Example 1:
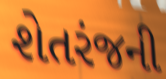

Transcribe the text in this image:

શેતરંજની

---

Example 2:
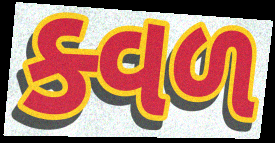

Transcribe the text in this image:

ક્વળ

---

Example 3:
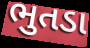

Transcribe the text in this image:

ભુતડા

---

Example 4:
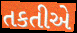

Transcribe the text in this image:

તકતીએ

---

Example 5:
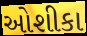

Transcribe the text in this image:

ઓશીકા